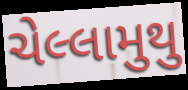
ચેલ્લામુથુ